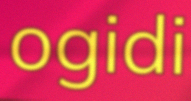
ogidi